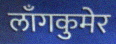
लाँगकुमेर